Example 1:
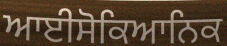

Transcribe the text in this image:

ਆਈਸੋਕਿਆਨਿਕ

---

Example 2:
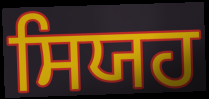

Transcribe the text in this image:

ਸਿਯਹ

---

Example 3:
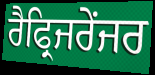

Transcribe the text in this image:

ਰੈਫ੍ਰਿਜਰੇਂਜਰ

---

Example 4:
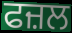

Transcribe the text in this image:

ਫਜ਼ਲ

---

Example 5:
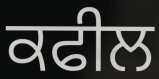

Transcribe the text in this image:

ਕਫੀਲ